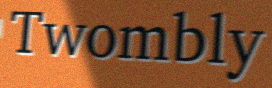
Twombly